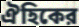
ঐহিকের